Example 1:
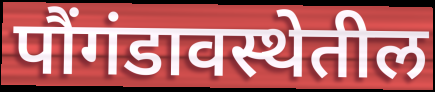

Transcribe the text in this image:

पौंगंडावस्थेतील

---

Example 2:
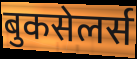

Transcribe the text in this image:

बुकसेलर्स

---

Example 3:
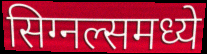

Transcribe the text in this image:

सिग्नल्समध्ये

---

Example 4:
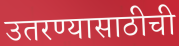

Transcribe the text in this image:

उतरण्यासाठीची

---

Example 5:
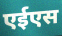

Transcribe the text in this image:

एईएस